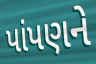
પાંપણને